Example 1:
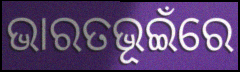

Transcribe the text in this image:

ଭାରତଭୂଇଁରେ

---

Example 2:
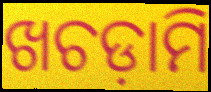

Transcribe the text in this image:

ଖଚଡ଼ାମି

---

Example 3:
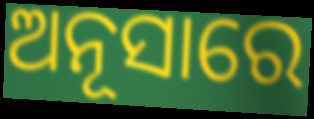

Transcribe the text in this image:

ଅନୂସାରେ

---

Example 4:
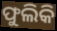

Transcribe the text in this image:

ଫୁଲିକି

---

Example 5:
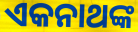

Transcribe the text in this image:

ଏକନାଥଙ୍କ